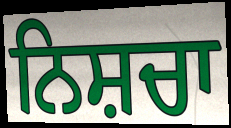
ਨਿਸ਼ਚਾ